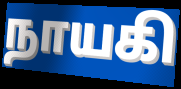
நாயகி